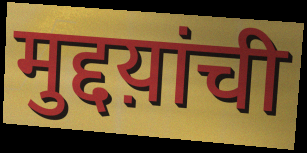
मुद्दय़ांची